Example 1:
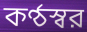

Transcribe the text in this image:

কণ্ঠস্বর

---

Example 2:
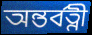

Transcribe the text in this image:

অন্তর্বত্নী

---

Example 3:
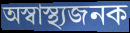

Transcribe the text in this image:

অস্বাস্থ্যজনক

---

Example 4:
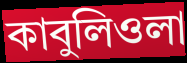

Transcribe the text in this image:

কাবুলিওলা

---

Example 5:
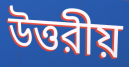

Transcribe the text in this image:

উত্তরীয়